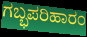
ಗಬ್ಭಪರಿಹಾರಂ